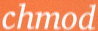
chmod